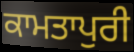
ਕਾਮਤਾਪੁਰੀ